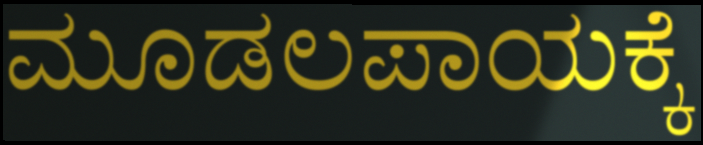
ಮೂಡಲಪಾಯಕ್ಕೆ